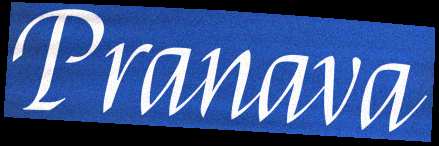
Pranava